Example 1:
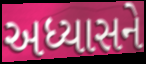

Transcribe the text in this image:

અધ્યાસને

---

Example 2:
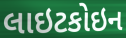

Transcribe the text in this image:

લાઇટકોઇન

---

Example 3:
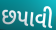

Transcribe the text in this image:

છપાવી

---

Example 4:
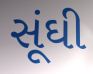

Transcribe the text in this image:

સૂંઘી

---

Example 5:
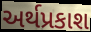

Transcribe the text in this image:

અર્થપ્રકાશ